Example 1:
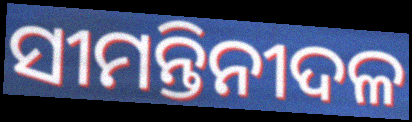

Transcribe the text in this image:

ସୀମନ୍ତିନୀଦଳ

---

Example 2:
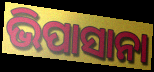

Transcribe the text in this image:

ଭିପାସାନା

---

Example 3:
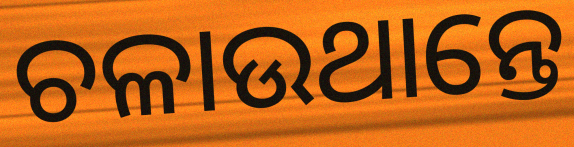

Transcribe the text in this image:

ଚଳାଉଥାନ୍ତେ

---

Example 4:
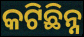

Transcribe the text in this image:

କଟିଛିନ୍ନ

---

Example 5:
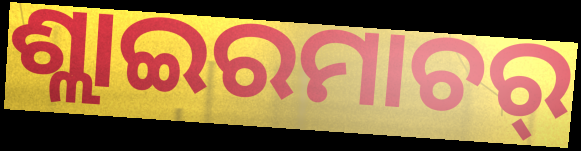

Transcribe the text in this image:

ଶ୍ଲାଇରମାଚର୍